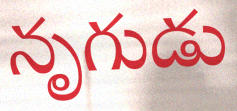
నృగుడు